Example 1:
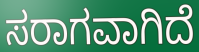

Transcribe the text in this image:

ಸರಾಗವಾಗಿದೆ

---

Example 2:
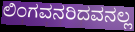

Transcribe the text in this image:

ಲಿಂಗವನರಿದವನಲ್ಲ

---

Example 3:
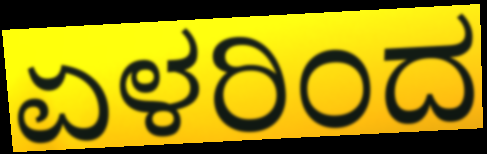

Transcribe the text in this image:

ಏಳರಿಂದ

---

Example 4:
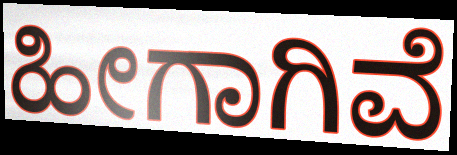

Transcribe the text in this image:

ಹೀಗಾಗಿವೆ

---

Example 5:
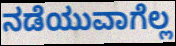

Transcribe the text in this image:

ನಡೆಯುವಾಗೆಲ್ಲ